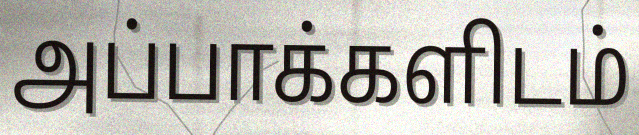
அப்பாக்களிடம்